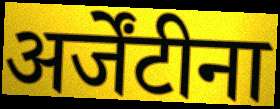
अर्जेंटीना